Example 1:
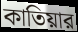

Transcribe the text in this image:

কাতিয়ার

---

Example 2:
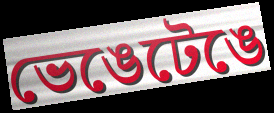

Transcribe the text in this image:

ভেঙেটেঙে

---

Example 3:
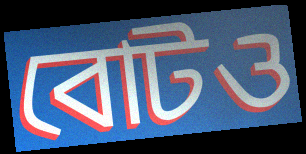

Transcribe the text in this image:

বোটও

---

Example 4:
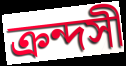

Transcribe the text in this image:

ক্রন্দসী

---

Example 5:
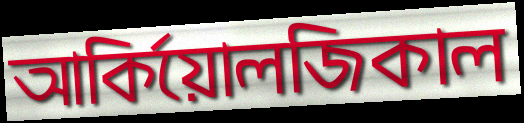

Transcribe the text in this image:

আর্কিয়োলজিকাল